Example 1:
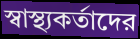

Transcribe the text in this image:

স্বাস্থ্যকর্তাদের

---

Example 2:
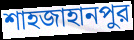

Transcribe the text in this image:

শাহজাহানপুর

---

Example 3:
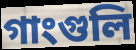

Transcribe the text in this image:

গাংগুলি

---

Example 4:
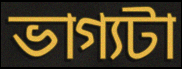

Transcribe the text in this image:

ভাগ্যটা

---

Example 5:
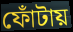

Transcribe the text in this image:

ফোঁটায়